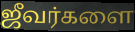
ஜீவர்களை